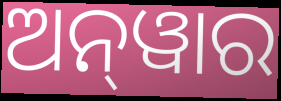
ଅନ୍‌ୱାର